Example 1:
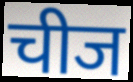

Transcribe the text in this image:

चीज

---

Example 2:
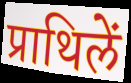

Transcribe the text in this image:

प्राथिलें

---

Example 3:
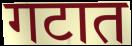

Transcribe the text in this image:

गटात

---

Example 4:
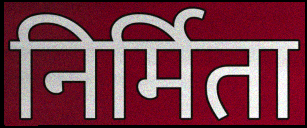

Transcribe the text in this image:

निर्मिता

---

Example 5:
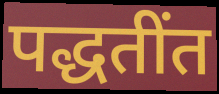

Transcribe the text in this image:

पद्धतींत